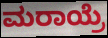
ಮರಾಯ್ರೆ